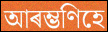
আৰম্ভণিহে